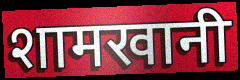
शामखानी